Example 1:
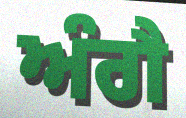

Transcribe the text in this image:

ਅੰਗੈ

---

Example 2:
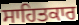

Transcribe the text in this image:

ਸਾਹਿਤਕਾਰ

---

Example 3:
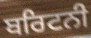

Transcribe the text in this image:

ਬਰਿਟਨੀ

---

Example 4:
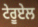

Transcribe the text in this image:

ਟੇਰੂਏਲ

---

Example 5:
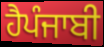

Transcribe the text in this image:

ਹੈਪੰਜਾਬੀ